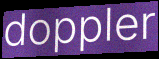
doppler